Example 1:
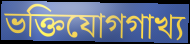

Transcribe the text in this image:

ভক্তিযোগগাখ্য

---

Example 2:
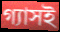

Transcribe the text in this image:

গ্যাসই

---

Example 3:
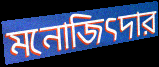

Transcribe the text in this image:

মনোজিৎদার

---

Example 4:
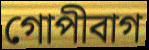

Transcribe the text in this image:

গোপীবাগ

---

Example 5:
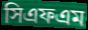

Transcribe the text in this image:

সিএফএম